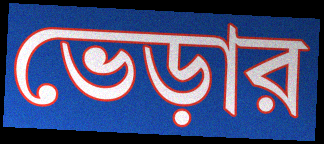
ভেড়ার